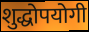
शुद्धोपयोगी